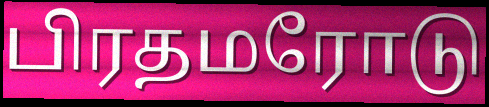
பிரதமரோடு